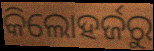
କିଲୋହର୍ଜରୁ